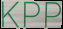
KPP